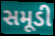
સમૂડી